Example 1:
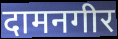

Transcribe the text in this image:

दामनगीर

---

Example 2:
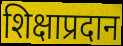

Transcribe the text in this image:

शिक्षाप्रदान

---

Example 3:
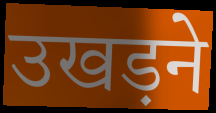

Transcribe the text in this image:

उखड़ने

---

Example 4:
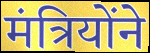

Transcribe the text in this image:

मंत्रियोंने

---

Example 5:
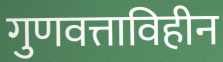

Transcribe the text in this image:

गुणवत्ताविहीन